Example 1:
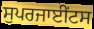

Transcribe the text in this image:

ਸੁਪਰਜਾਈਂਟਸ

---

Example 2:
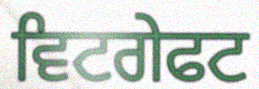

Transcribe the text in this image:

ਵਿਟਗੇਫਟ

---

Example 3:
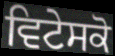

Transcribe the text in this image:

ਵਿਟੇਸਕੋ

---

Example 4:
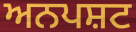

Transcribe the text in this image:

ਅਨਪਸ਼ਟ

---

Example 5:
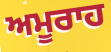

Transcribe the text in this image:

ਅਮੂਰਾਹ